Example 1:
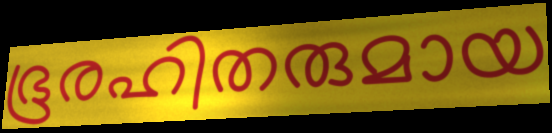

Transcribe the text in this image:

ഭൂരഹിതരുമായ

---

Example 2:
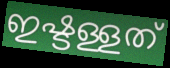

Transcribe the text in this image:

ഇഷ്ടള്ളത്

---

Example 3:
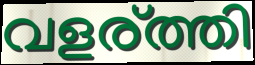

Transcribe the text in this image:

വളര്ത്തി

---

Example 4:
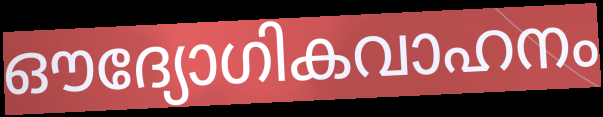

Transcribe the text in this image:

ഔദ്യോഗികവാഹനം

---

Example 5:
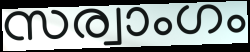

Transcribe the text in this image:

സര്വാംഗം